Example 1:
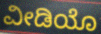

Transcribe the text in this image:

ವೀಡಿಯೊ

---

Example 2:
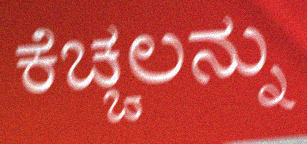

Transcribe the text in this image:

ಕೆಚ್ಚಲನ್ನು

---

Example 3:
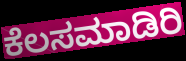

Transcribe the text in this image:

ಕೆಲಸಮಾಡಿರಿ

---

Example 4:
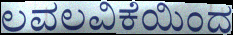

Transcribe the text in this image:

ಲವಲವಿಕೆಯಿಂದ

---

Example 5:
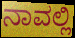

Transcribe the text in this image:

ನಾವಲ್ಲಿ